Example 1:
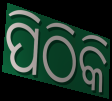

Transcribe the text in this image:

ପିଠିକି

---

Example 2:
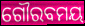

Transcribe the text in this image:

ଗୌରବମୟ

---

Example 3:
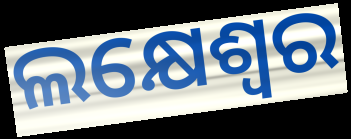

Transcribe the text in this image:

ଲକ୍ଷେଶ୍ୱର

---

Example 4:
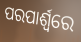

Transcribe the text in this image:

ପରପାର୍ଶ୍ୱରେ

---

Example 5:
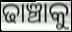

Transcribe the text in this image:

ଢାଞ୍ଚାକୁ